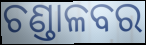
ଚଣ୍ଡାଳବର